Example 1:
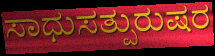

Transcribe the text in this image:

ಸಾಧುಸತ್ಪುರುಷರ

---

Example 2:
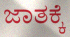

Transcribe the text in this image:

ಜಾತಕ್ಕೆ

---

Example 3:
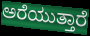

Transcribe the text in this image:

ಅರೆಯುತ್ತಾರೆ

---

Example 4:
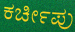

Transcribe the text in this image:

ಕರ್ಚೀಪು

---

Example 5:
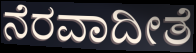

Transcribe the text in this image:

ನೆರವಾದೀತೆ